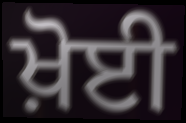
ਖ਼ੋਈ